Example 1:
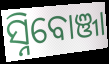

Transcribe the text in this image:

ସ୍ନିବୋଞ୍ଜା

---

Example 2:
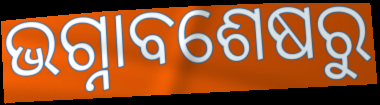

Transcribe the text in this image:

ଭଗ୍ନାବଶେଷରୁ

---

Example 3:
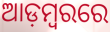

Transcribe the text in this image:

ଆଡ଼ମ୍ୱରରେ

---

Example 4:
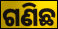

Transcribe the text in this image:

ଗଣିଛ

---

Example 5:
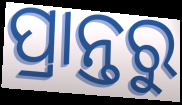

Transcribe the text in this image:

ପ୍ରାନ୍ତରୁ